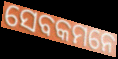
ସେବକମନେ